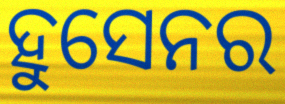
ହୁସେନର